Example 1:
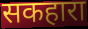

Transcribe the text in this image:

सकहारा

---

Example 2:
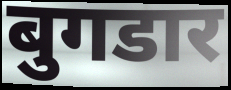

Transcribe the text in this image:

बुगडार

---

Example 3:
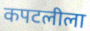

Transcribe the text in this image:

कपटलीला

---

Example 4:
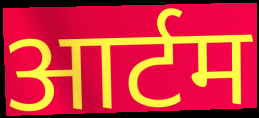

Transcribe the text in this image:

आर्टम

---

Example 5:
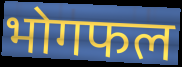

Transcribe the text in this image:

भोगफल